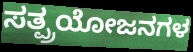
ಸತ್ಪ್ರಯೋಜನಗಳ